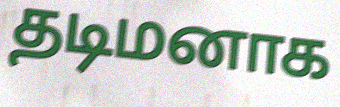
தடிமனாக